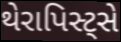
થેરાપિસ્ટ્સે